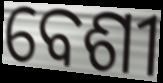
ବେଶୀ